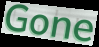
Gone